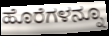
ಹೊರೆಗಳನ್ನೂ